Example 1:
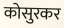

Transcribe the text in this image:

कोसुरकर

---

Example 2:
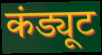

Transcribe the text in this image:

कंड्यूट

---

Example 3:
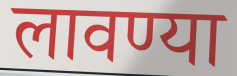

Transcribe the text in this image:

लावण्या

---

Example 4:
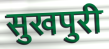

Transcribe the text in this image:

सुखपुरी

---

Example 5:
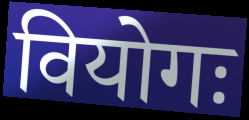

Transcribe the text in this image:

वियोगः